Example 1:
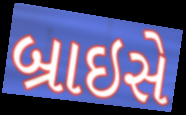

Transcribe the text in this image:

બ્રાઇસે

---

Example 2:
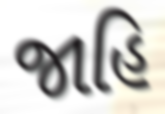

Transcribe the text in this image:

જાહિ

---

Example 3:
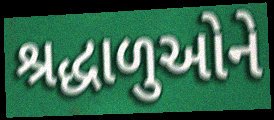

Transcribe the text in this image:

શ્રદ્ધાળુઓને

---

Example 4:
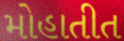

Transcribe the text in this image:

મોહાતીત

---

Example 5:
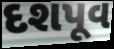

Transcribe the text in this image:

દશપૂવ